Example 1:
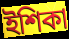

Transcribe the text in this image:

ইশিকা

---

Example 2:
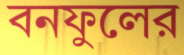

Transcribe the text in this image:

বনফুলের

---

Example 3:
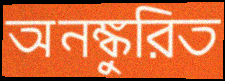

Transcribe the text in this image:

অনঙ্কুরিত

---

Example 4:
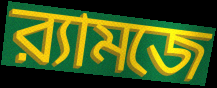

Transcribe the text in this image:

র‍্যামজে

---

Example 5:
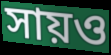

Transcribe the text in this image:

সায়ও